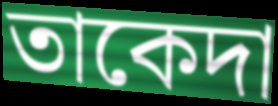
তাকেদা